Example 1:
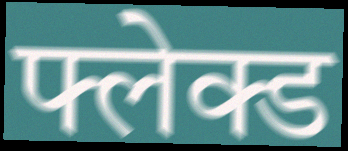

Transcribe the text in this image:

फ्लेक्ड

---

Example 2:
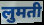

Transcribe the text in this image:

लुमती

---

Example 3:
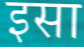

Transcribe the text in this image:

इसा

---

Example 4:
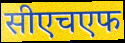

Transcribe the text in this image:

सीएचएफ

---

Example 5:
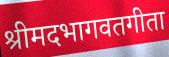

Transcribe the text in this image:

श्रीमदभागवतगीता